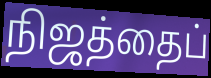
நிஜத்தைப்